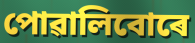
পোৱালিবোৰে